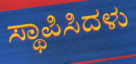
ಸ್ಥಾಪಿಸಿದಳು